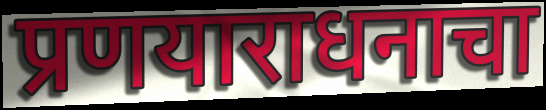
प्रणयाराधनाचा